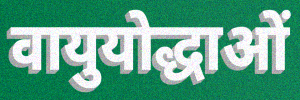
वायुयोद्धाओं